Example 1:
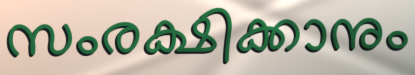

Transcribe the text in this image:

സംരക്ഷിക്കാനും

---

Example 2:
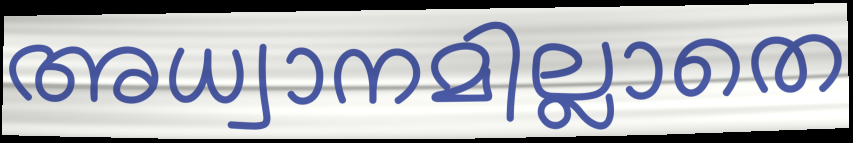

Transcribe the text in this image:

അധ്വാനമില്ലാതെ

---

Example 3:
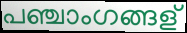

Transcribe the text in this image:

പഞ്ചാംഗങ്ങള്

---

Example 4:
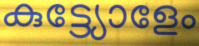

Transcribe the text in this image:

കുട്ട്യോളേം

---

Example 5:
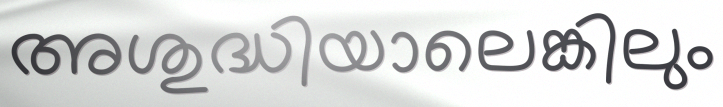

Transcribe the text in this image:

അശുദ്ധിയാലെങ്കിലും